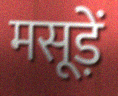
मसूड़ें